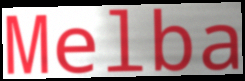
Melba